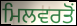
ਮਿਲਵਰਤੋਂ